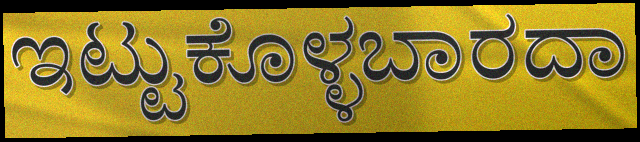
ಇಟ್ಟುಕೊಳ್ಳಬಾರದಾ